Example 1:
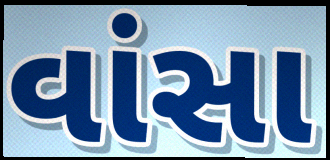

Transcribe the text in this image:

વાંસા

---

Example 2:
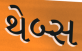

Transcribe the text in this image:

થેબ્સ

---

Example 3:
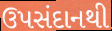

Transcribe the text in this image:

ઉપસંદાનથી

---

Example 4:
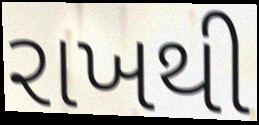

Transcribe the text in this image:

રાખથી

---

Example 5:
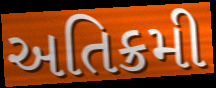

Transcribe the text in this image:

અતિક્રમી